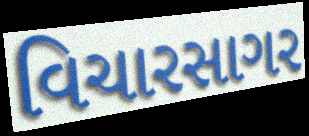
વિચારસાગર